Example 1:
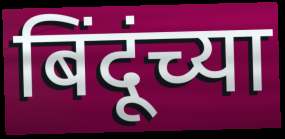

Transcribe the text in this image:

बिंदूंच्या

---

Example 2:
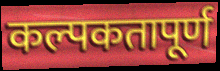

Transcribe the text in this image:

कल्पकतापूर्ण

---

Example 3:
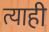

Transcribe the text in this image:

त्याही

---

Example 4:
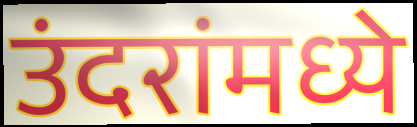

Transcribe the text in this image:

उंदरांमध्ये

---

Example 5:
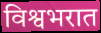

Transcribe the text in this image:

विश्वभरात